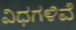
ವಿಧಗಳಿವೆ